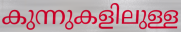
കുന്നുകളിലുള്ള